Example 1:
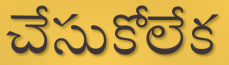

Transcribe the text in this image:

చేసుకోలేక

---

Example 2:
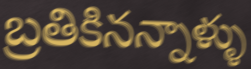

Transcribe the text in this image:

బ్రతికినన్నాళ్ళు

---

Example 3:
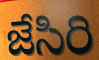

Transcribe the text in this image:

జేసిరి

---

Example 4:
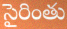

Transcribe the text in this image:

సైరింతు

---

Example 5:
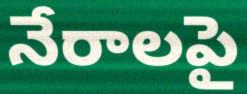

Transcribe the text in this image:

నేరాలపై